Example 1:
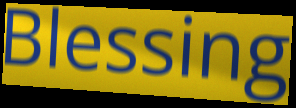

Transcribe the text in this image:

Blessing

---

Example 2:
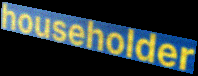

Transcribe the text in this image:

householder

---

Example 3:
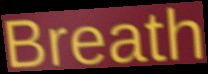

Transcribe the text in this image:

Breath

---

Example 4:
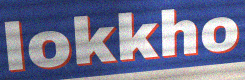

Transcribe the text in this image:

lokkho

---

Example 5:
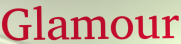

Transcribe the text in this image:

Glamour